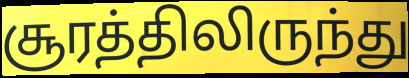
சூரத்திலிருந்து